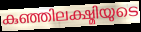
കുഞ്ഞിലക്ഷ്മിയുടെ